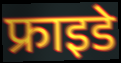
फ्राइडे